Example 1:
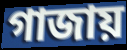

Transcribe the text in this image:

গাজায়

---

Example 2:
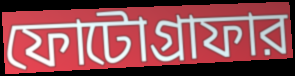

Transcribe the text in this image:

ফোটোগ্রাফার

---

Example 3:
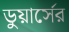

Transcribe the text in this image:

ডুয়ার্সের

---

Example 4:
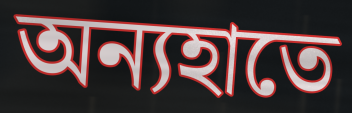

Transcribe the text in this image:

অন্যহাতে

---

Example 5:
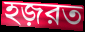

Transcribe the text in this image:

হজ়রত